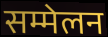
सम्‍मेलन